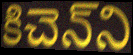
కిచెన్‌ని